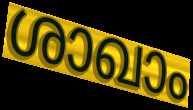
ശാഖാം